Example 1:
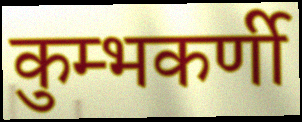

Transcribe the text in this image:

कुम्भकर्णी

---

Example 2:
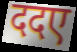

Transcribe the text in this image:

ददए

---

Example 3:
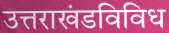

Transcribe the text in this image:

उत्तराखंडविविध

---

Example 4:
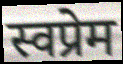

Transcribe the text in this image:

स्वप्रेम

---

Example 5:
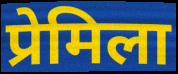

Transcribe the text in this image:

प्रेमिला